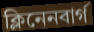
ক্লিনেনবার্গ